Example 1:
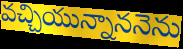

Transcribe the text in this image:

వచ్చియున్నాననెను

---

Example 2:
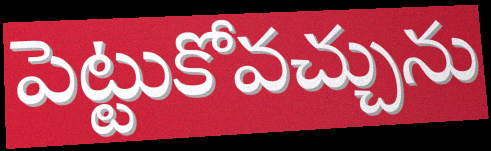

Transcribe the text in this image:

పెట్టుకోవచ్చును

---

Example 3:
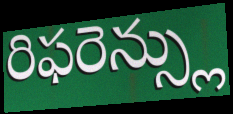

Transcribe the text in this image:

రిఫరెన్స్లు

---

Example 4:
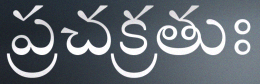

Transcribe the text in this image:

ప్రచక్రతుః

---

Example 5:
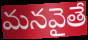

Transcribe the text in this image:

మనవైతే